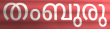
തംബുരു